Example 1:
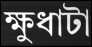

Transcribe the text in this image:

ক্ষুধাটা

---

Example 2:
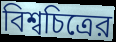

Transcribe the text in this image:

বিশ্বচিত্রের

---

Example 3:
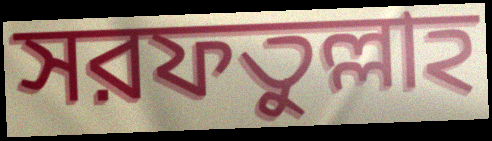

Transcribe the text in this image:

সরফতুল্লাহ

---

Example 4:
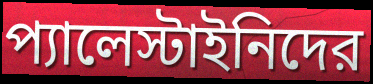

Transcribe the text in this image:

প্যালেস্টাইনিদের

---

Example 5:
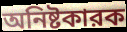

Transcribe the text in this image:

অনিষ্টকারক